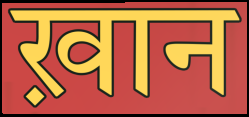
ख़ान